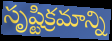
సృష్టిక్రమాన్ని